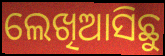
ଲେଖିଆସିଛୁ